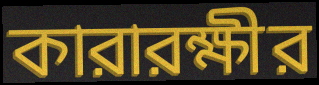
কারারক্ষীর